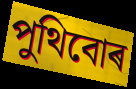
পুথিবোৰ